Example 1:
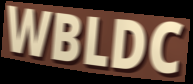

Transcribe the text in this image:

WBLDC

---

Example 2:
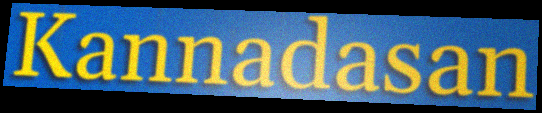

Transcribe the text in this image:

Kannadasan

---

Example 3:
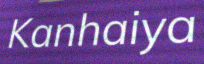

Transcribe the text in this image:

Kanhaiya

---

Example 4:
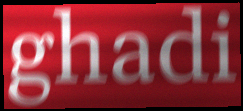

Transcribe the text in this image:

ghadi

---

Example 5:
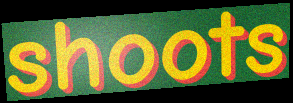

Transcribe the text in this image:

shoots